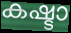
കഷ്ടാ